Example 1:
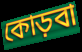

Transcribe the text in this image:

কোড়বা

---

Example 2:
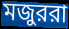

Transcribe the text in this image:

মজুররা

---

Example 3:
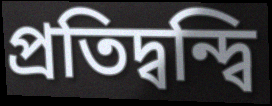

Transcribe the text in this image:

প্রতিদ্বন্দ্বি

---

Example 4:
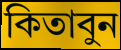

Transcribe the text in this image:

কিতাবুন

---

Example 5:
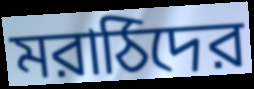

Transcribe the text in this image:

মরাঠিদের